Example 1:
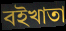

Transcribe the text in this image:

বইখাতা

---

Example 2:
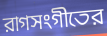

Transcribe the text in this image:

রাগসংগীতের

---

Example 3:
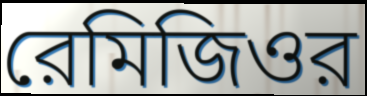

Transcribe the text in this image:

রেমিজিওর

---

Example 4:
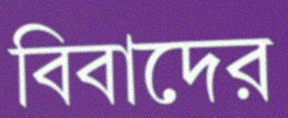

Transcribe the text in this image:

বিবাদের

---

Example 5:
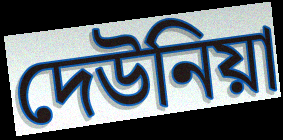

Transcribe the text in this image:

দেউনিয়া